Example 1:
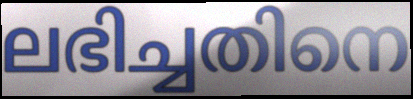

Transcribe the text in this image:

ലഭിച്ചതിനെ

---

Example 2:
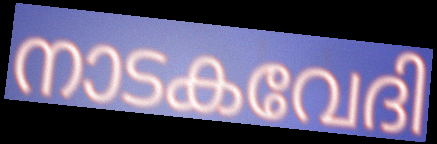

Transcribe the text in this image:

നാടകവേദി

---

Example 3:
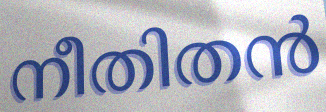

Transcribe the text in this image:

നീതിതൻ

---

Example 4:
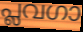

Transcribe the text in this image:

പ്ലവഗാ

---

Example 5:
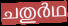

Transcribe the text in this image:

ചതുർഥ